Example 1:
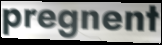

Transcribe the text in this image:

pregnent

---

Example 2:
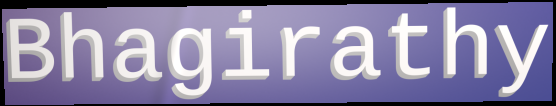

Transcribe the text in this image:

Bhagirathy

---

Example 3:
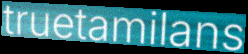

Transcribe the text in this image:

truetamilans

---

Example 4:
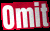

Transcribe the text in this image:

Omit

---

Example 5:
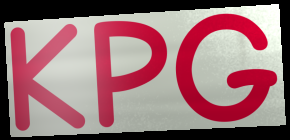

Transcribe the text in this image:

KPG